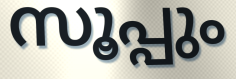
സൂപ്പും